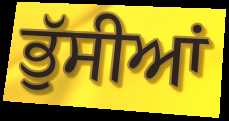
ਭੁੱਸੀਆਂ